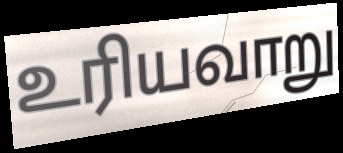
உரியவாறு